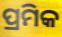
ପ୍ରମିକ